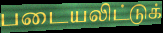
படையலிட்டுக்